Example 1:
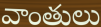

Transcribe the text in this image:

వాంతులు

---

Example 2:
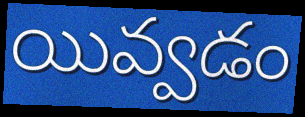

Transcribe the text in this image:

యివ్వడం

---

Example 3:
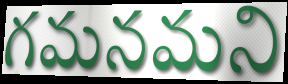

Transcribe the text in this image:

గమనమని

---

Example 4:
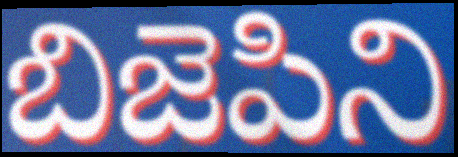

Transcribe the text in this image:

బిజెపిని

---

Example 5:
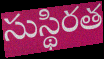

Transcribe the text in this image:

సుస్థిరత